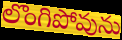
లొంగిపోవును